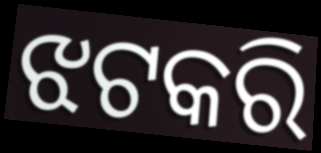
ଝଟକରି